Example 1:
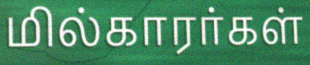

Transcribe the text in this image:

மில்காரர்கள்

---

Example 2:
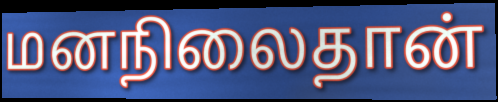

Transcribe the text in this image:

மனநிலைதான்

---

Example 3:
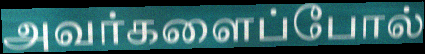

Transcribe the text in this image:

அவர்களைப்போல்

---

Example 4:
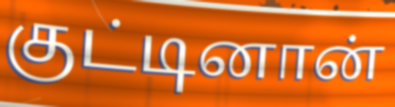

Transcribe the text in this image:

குட்டினான்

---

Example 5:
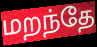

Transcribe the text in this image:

மறந்தே